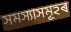
সমস্যাসমূহৰ